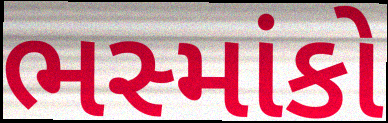
ભસ્માંકો